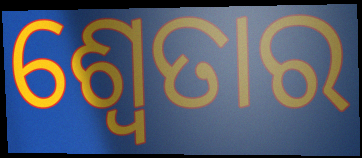
ଶ୍ୱେତାର